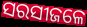
ସରସୀଜଳେ